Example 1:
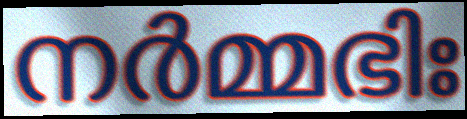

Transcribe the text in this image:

നർമ്മഭിഃ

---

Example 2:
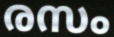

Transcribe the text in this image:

രസം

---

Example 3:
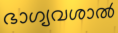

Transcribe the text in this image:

ഭാഗ്യവശാൽ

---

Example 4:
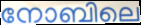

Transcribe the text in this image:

നോബിലെ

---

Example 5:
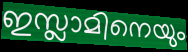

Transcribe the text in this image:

ഇസ്ലാമിനെയും